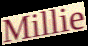
Millie